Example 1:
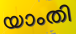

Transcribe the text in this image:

യാംതി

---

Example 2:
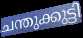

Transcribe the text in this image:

ചന്തുക്കുട്ടി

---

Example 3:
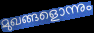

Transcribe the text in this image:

മുഖങ്ങളൊന്നും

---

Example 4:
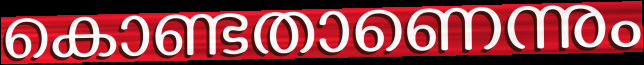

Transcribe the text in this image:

കൊണ്ടതാണെന്നും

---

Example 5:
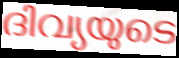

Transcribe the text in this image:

ദിവ്യയുടെ